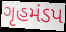
ગૃહમંડપ